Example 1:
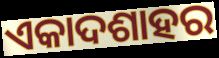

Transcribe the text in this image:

ଏକାଦଶାହର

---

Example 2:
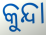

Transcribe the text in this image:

କୁନ୍ଦା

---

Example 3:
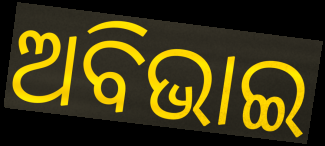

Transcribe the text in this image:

ଅବିଭାଇ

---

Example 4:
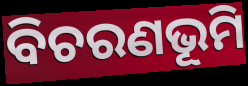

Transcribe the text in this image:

ବିଚରଣଭୂମି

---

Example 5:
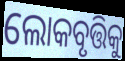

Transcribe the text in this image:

ଲୋକବୃତ୍ତିକୁ